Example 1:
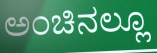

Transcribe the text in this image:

ಅಂಚಿನಲ್ಲೂ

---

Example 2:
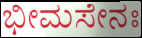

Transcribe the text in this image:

ಭೀಮಸೇನಃ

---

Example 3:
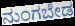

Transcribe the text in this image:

ನುಂಗಬೇಡ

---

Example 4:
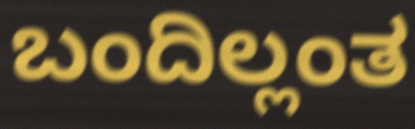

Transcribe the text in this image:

ಬಂದಿಲ್ಲಂತ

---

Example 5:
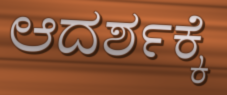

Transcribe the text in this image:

ಆದರ್ಶಕ್ಕೆ